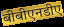
बीबीएनडीए